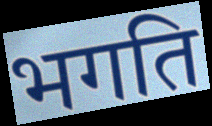
भगति